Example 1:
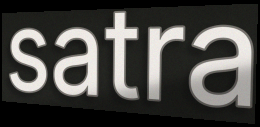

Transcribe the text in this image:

satra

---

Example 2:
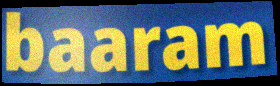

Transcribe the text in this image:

baaram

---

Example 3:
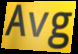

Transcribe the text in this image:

Avg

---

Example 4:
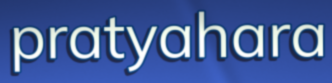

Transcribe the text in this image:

pratyahara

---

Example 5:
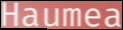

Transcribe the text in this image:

Haumea